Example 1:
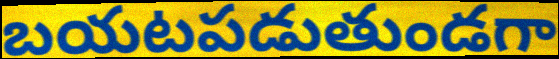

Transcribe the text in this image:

బయటపడుతుండగా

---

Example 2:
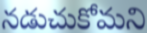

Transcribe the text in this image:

నడుచుకోమని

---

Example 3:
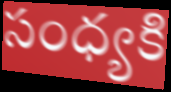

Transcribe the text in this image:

సంధ్యకి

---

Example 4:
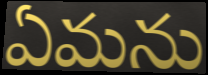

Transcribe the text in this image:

ఏమను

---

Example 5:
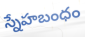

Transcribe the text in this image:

స్నేహబంధం